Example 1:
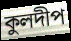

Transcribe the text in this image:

কুলদীপ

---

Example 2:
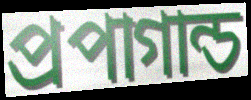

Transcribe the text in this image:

প্রপাগান্ড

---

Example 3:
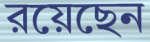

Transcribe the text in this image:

রয়েছেন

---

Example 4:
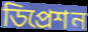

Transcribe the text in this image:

ডিপ্রেশন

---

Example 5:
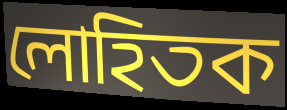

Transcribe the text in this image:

লোহিতক